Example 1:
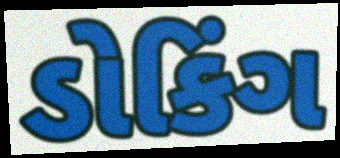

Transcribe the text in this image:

ડોકિંગ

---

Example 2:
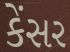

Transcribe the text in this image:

કેંસર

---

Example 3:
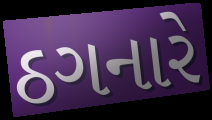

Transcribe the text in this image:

ઠગનારે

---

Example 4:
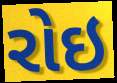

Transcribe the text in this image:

રોઇ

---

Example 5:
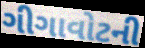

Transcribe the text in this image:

ગીગાવોટની